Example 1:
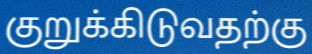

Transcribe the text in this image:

குறுக்கிடுவதற்கு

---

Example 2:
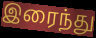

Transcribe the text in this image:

இரைந்து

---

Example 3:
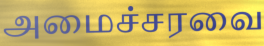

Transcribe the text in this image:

அமைச்சரவை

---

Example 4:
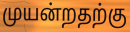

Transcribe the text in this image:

முயன்றதற்கு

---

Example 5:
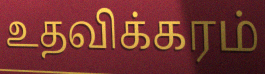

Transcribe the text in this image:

உதவிக்கரம்